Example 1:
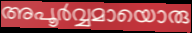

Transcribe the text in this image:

അപൂർവ്വമായൊരു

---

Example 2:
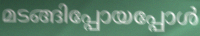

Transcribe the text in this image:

മടങ്ങിപ്പോയപ്പോൾ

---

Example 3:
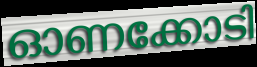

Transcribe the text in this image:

ഓണക്കോടി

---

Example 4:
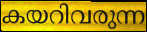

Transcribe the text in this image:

കയറിവരുന്ന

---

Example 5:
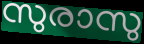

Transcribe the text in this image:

സുരാസു